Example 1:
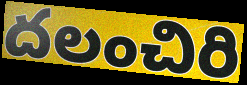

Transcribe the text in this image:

దలంచిరి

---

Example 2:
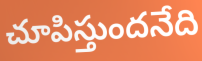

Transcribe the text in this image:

చూపిస్తుందనేది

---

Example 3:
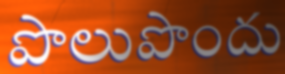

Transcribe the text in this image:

పొలుపొందు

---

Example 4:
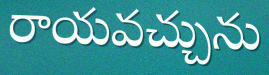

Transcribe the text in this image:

రాయవచ్చును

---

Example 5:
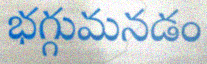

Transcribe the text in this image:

భగ్గుమనడం